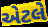
એટલે